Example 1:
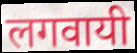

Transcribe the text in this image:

लगवायी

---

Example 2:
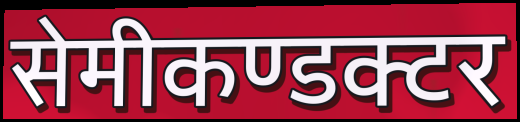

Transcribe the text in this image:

सेमीकण्डक्टर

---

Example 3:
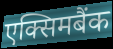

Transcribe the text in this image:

एक्सिमबैंक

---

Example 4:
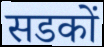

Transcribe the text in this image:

सडकों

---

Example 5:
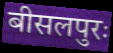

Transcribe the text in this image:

बीसलपुरः